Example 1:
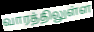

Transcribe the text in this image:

வாரத்திலுள்ள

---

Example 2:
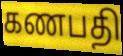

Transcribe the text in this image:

கணபதி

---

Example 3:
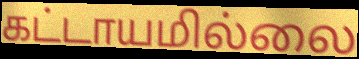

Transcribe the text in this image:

கட்டாயமில்லை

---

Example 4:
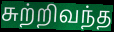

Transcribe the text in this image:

சுற்றிவந்த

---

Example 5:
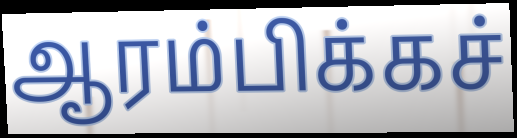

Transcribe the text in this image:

ஆரம்பிக்கச்